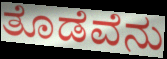
ತೊಡೆವೆನು